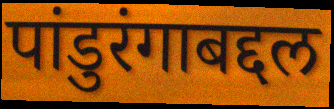
पांडुरंगाबद्दल